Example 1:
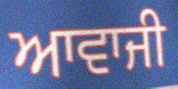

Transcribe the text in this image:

ਆਵਾਜੀ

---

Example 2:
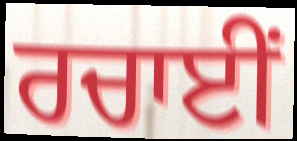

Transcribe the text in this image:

ਰਚਾਈਂ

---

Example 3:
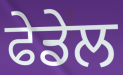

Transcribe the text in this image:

ਫੇਡੇਲ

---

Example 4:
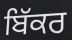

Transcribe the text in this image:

ਬਿੱਕਰ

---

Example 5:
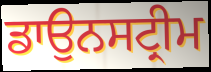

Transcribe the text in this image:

ਡਾਉਨਸਟ੍ਰੀਮ